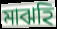
মাঝহি